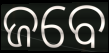
ଜବେ